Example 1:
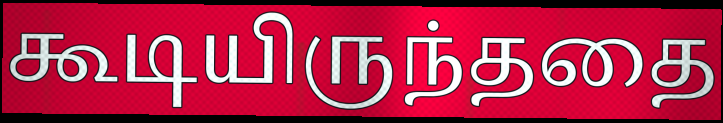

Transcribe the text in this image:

கூடியிருந்ததை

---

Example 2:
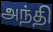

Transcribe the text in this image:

அந்தி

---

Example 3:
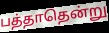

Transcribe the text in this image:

பத்தாதென்று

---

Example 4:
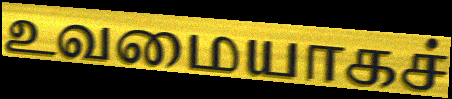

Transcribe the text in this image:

உவமையாகச்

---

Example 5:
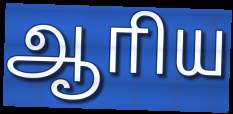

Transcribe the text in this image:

ஆரிய